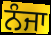
ਨੰਜਾ